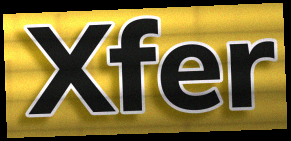
Xfer